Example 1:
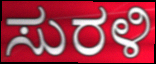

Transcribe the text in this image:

ಸುರಳಿ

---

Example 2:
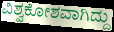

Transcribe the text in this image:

ವಿಶ್ವಕೋಶವಾಗಿದ್ದು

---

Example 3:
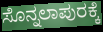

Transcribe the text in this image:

ಸೊನ್ನಲಾಪುರಕ್ಕೆ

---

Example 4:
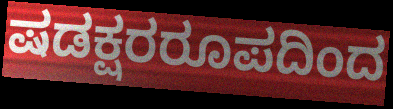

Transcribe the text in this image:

ಷಡಕ್ಷರರೂಪದಿಂದ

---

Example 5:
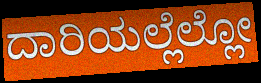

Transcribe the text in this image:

ದಾರಿಯಲ್ಲೆಲ್ಲೋ